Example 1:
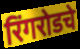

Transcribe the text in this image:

रिंगरोडचे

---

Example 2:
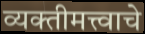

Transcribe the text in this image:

व्यक्तीमत्त्वाचे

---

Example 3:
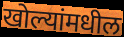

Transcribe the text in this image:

खोल्यांमधील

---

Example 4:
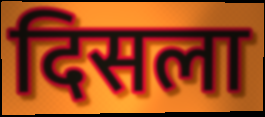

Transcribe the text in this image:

दिसला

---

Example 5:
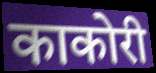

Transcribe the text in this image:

काकोरी